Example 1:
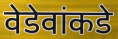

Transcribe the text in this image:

वेडेवांकडे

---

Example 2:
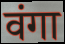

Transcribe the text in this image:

वंगा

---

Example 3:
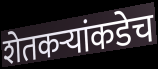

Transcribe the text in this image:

शेतकऱ्यांकडेच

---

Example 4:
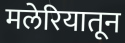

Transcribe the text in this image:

मलेरियातून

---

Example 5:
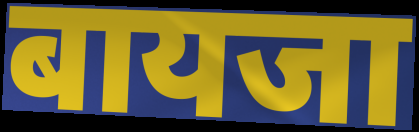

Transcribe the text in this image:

बायजा